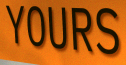
YOURS